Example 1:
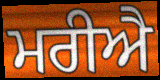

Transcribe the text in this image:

ਮਰੀਐ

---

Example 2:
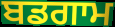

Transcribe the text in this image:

ਬਡਗਾਮ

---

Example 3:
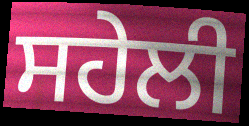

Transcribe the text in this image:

ਸਹੇਲੀ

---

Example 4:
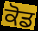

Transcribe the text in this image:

ਕੋਡ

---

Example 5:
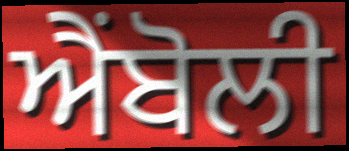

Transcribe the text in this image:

ਐਂਬੋਲੀ